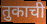
तुकाची